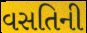
વસતિની